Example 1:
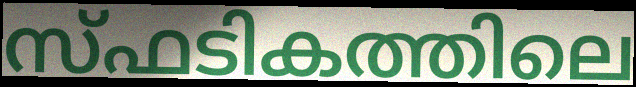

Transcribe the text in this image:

സ്ഫടികത്തിലെ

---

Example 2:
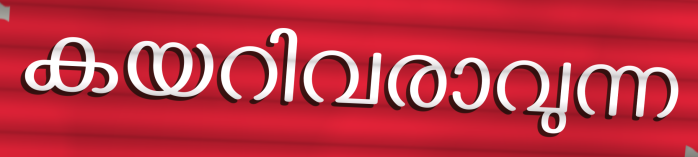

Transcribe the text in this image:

കയറിവരാവുന്ന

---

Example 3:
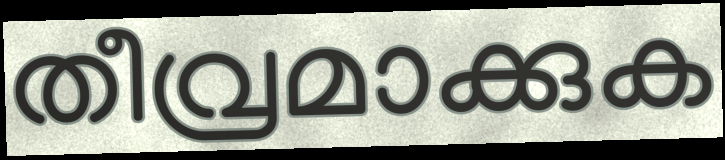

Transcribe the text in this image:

തീവ്രമാക്കുക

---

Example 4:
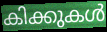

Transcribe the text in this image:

കിക്കുകൾ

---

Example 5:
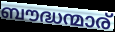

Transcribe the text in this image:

ബൗദ്ധന്മാര്